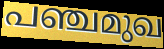
പഞ്ചമുഖ